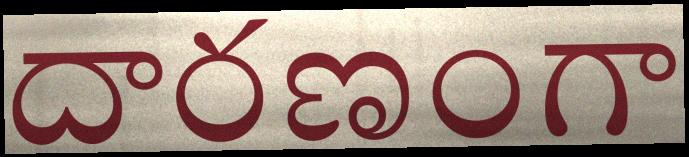
దారణంగా